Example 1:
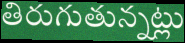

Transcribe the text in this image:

తిరుగుతున్నట్లు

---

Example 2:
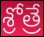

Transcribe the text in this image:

శ్రోత్రే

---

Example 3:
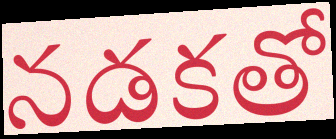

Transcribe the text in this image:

నడకతో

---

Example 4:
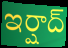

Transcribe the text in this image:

ఇర్షాద్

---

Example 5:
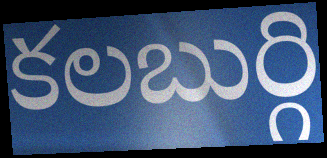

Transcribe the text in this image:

కలబుర్గి